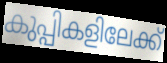
കുപ്പികളിലേക്ക്